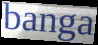
banga